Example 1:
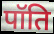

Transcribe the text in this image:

पॉति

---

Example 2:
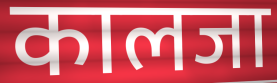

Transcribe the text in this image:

कालजा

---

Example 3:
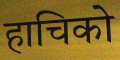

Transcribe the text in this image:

हाचिको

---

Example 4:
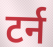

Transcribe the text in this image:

टर्न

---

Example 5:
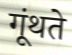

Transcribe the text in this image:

गूंथते